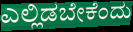
ಎಲ್ಲಿಡಬೇಕೆಂದು